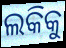
ଲକିକୁ